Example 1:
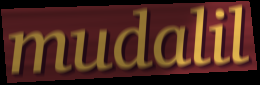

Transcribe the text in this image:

mudalil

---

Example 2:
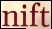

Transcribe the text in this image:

nift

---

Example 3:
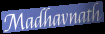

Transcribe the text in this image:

Madhavnath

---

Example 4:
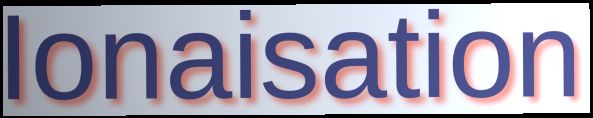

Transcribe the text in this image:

Ionaisation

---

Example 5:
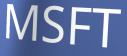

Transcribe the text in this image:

MSFT